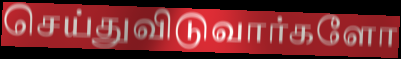
செய்துவிடுவார்களோ